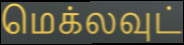
மெக்லவுட்